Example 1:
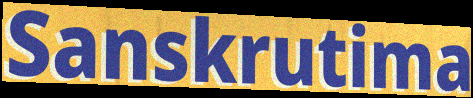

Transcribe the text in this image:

Sanskrutima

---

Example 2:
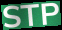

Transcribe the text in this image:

STP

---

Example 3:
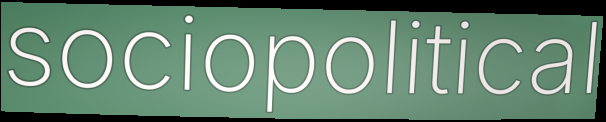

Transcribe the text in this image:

sociopolitical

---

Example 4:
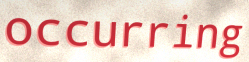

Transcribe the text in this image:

occurring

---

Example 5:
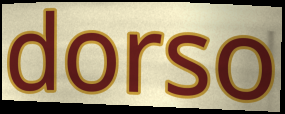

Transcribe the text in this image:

dorso